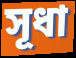
সূধা